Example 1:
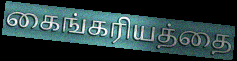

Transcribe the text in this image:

கைங்கரியத்தை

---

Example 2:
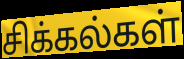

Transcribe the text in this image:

சிக்கல்கள்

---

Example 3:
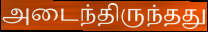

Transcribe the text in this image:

அடைந்திருந்தது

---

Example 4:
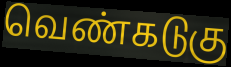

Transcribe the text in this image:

வெண்கடுகு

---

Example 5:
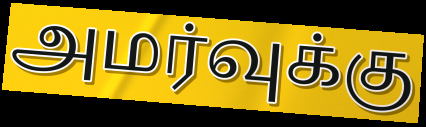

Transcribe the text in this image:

அமர்வுக்கு